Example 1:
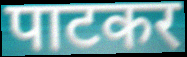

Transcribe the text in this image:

पाटकर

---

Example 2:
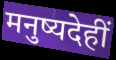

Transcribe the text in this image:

मनुष्यदेहीं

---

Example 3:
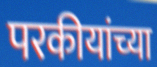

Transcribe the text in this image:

परकीयांच्या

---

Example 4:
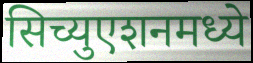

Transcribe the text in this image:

सिच्युएशनमध्ये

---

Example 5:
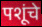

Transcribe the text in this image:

पशूंचे